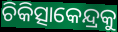
ଚିକିତ୍ସାକେନ୍ଦ୍ରକୁ